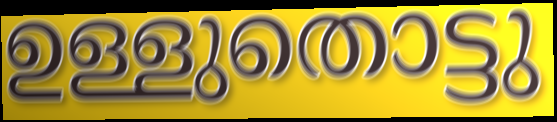
ഉള്ളുതൊട്ടു